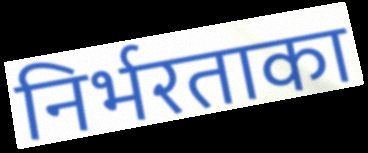
निर्भरताका